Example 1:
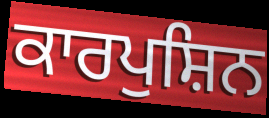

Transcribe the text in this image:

ਕਾਰਪੁਸ਼ਿਨ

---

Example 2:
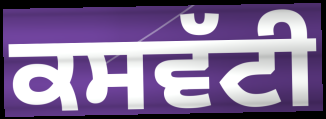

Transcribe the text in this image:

ਕਸਵੱਟੀ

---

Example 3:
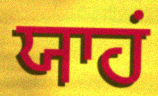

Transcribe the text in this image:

ਯਾਹਂ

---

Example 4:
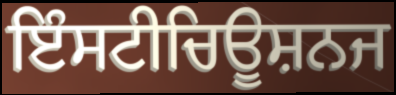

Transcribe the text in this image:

ਇੰਸਟੀਚਿਊਸ਼ਨਜ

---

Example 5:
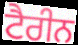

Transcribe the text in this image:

ਟੈਰੀਨ